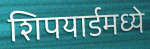
शिपयार्डमध्ये